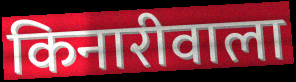
किनारीवाला